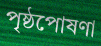
পৃষ্ঠপোষণা